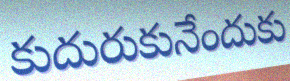
కుదురుకునేందుకు